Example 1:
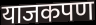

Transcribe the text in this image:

याजकपण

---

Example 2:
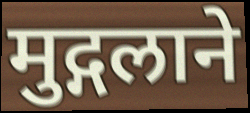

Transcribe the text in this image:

मुद्गलाने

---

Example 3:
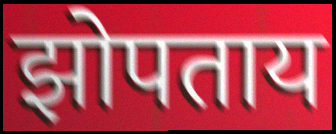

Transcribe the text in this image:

झोपताय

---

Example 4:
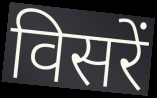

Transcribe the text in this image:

विसरें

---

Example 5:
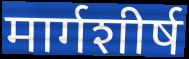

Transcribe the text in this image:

मार्गशीर्ष